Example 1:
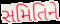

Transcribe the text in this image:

સમિતિને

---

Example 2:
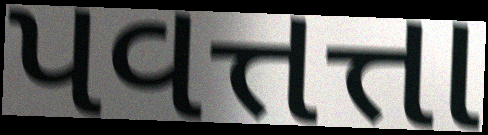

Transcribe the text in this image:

પવત્તત્તા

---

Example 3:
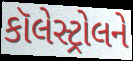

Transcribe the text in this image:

કૉલેસ્ટ્રોલને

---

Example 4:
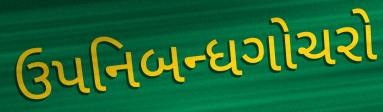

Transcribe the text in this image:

ઉપનિબન્ધગોચરો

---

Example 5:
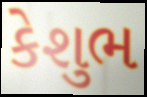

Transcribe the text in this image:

કેશુભ